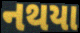
નથયા